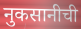
नुकसानीची